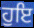
ਹੁਇ